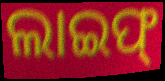
ଲାଇଫ୍